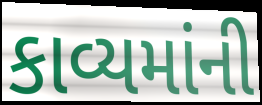
કાવ્યમાંની